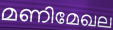
മണിമേഖല